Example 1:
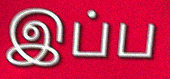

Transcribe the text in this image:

இப்ப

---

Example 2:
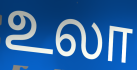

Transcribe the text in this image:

உலா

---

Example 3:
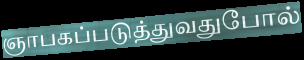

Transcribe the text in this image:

ஞாபகப்படுத்துவதுபோல்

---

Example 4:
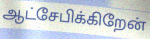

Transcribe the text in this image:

ஆட்சேபிக்கிறேன்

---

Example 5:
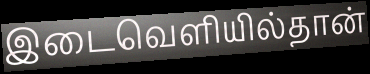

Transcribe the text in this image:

இடைவெளியில்தான்